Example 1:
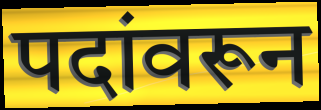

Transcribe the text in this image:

पदांवरून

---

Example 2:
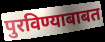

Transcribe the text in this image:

पुरविण्याबाबत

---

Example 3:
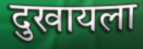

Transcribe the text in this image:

दुखायला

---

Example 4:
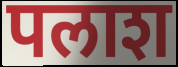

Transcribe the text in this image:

पलाश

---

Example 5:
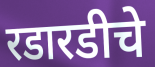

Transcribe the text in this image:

रडारडीचे